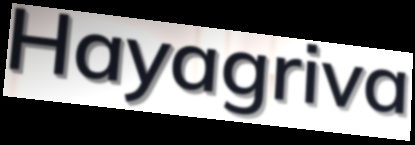
Hayagriva